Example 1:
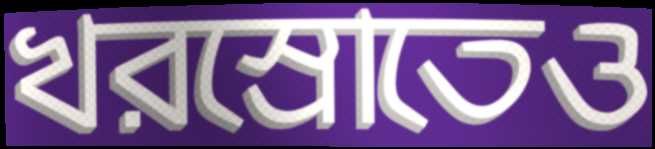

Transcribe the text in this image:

খরস্রোতেও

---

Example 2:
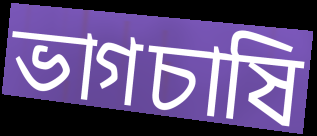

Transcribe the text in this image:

ভাগচাষি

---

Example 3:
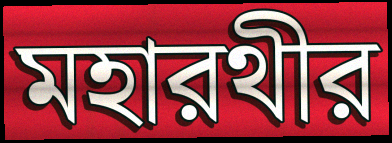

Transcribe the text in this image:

মহারথীর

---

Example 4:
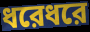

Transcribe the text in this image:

ধরেধরে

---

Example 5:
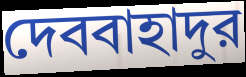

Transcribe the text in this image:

দেববাহাদুর